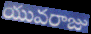
యువరాజు